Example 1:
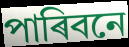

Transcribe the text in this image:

পাৰিবনে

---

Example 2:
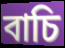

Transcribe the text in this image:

বাচি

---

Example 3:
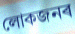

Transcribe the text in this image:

লোকজনৰ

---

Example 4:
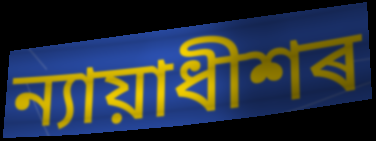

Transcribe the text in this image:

ন্যায়াধীশৰ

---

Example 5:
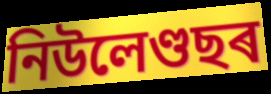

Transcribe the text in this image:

নিউলেণ্ডছৰ